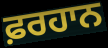
ਫ਼ਰਹਾਨ